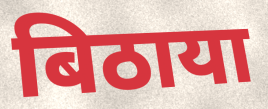
बिठाया